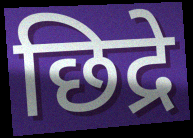
छिद्रे